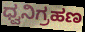
ಧ್ವನಿಗ್ರಹಣ